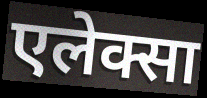
एलेक्सा